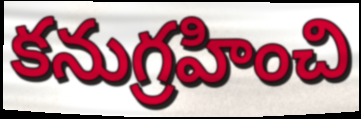
కనుగ్రహించి